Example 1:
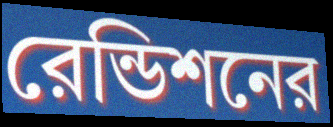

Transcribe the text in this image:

রেন্ডিশনের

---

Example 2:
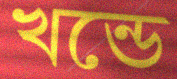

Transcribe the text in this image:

খন্ডে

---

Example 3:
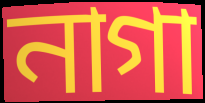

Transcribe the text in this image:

নাগা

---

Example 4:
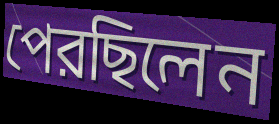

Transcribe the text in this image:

পেরছিলেন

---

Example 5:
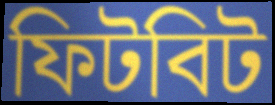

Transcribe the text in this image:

ফিটবিট